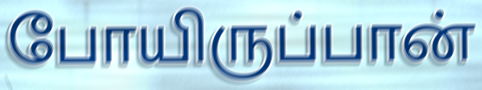
போயிருப்பான்